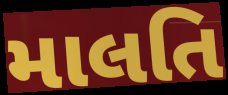
માલતિ